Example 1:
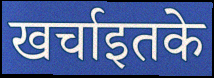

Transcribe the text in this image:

खर्चाइतके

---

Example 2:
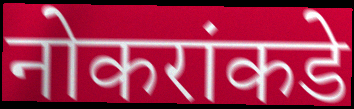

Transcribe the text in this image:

नोकरांकडे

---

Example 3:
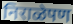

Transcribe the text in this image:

निराळेपण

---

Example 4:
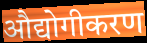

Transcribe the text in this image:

औद्योगीकरण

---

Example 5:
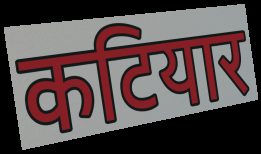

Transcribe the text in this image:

कटियार